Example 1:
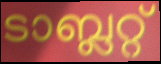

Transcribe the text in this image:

ടാബ്ലറ്റ്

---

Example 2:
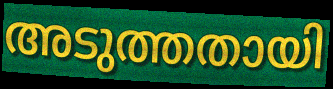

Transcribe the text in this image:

അടുത്തതായി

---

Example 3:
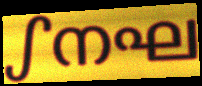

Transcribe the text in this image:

ഽനഘ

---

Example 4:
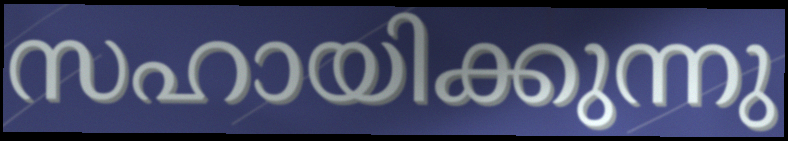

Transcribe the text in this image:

സഹായിക്കുന്നു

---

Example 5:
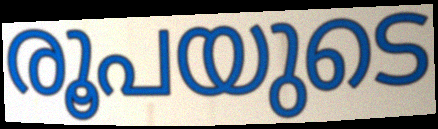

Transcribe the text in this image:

രൂപയുടെ